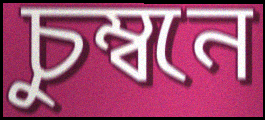
চুম্বনে